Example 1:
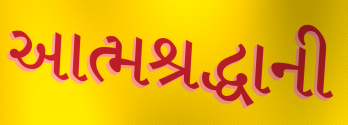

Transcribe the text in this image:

આત્મશ્રદ્ધાની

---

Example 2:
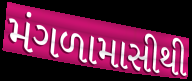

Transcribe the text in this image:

મંગળામાસીથી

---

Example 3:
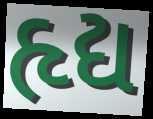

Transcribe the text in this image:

હૃદ્ય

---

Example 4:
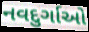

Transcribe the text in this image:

નવદુર્ગાઓ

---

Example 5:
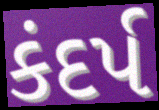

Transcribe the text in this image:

કંદર્પ